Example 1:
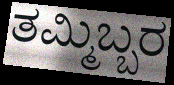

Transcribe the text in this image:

ತಮ್ಮಿಬ್ಬರ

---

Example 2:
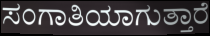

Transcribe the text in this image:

ಸಂಗಾತಿಯಾಗುತ್ತಾರೆ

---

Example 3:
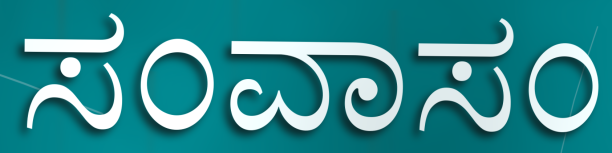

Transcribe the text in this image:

ಸಂವಾಸಂ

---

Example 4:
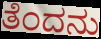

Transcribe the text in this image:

ತೆಂದನು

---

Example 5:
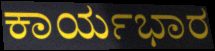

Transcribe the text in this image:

ಕಾರ್ಯಭಾರ